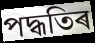
পদ্ধতিৰ